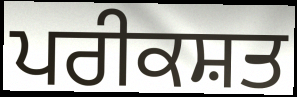
ਪਰੀਕਸ਼ਤ